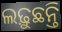
ଲଢ଼ୁଛନ୍ତି